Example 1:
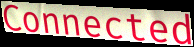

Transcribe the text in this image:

Connected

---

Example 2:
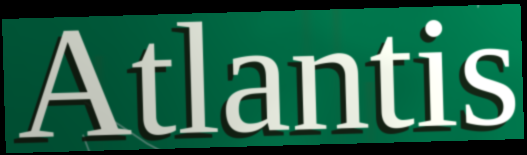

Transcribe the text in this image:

Atlantis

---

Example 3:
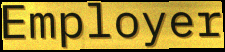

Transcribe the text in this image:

Employer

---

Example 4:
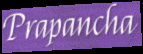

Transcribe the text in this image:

Prapancha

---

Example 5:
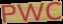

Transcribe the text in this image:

PWC